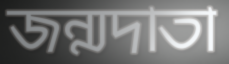
জন্মদাতা